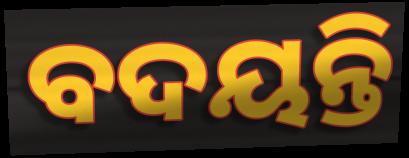
ବଦୟନ୍ତି